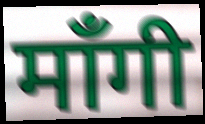
माँगी